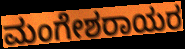
ಮಂಗೇಶರಾಯರ